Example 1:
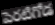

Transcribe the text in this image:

పెరటిగోడ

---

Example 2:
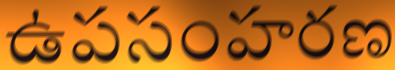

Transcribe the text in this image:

ఉపసంహరణ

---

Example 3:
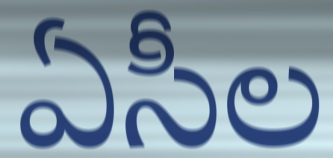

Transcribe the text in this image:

ఏసీల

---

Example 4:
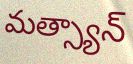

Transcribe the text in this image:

మత్స్యాన్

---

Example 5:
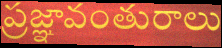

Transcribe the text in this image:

ప్రజ్ఞావంతురాలు